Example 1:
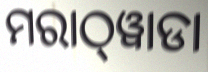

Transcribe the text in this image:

ମରାଠ୍‌ୱାଡା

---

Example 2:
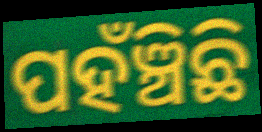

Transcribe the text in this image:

ପହଁଞ୍ଚିଛି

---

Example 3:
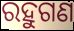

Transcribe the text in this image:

ରହୁଗଣ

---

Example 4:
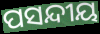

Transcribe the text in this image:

ପସନ୍ଦୀୟ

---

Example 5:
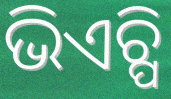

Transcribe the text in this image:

ଭିଏଚ୍ପି